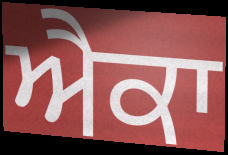
ਐਕਾ